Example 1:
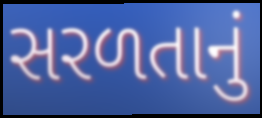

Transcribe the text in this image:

સરળતાનું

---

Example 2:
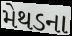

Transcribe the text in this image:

મેથડના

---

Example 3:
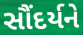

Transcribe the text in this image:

સૌંદર્યને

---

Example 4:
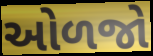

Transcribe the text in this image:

ઓળજો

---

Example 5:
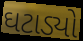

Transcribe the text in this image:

ઘટાડ્યો